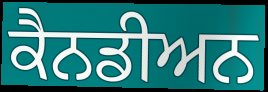
ਕੈਨਡੀਅਨ